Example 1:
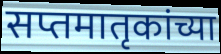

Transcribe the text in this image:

सप्तमातृकांच्या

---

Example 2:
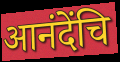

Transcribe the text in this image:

आनंदेंचि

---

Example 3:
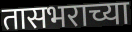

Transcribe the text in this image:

तासभराच्या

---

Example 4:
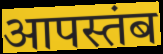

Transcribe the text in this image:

आपस्तंब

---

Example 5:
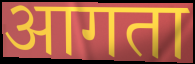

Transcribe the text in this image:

आगता